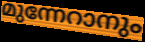
മുന്നേറാനും